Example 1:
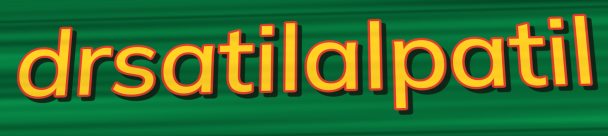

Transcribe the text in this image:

drsatilalpatil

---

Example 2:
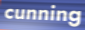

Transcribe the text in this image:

cunning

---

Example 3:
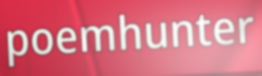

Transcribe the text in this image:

poemhunter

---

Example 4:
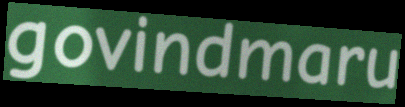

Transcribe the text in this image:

govindmaru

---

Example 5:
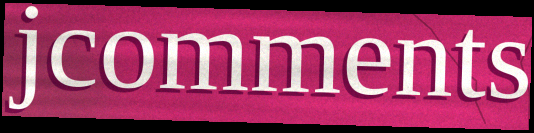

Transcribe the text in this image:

jcomments